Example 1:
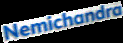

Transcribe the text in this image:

Nemichandra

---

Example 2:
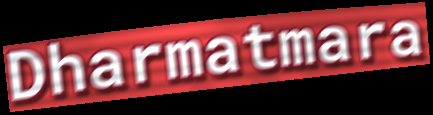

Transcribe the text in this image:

Dharmatmara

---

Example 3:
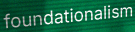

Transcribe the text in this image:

foundationalism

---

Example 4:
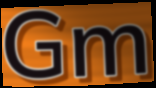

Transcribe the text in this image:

Gm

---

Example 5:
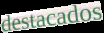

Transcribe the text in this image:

destacados